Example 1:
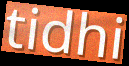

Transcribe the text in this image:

tidhi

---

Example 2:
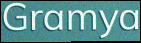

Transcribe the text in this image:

Gramya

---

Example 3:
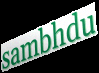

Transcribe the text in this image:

sambhdu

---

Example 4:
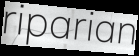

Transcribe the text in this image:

riparian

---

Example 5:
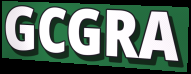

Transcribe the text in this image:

GCGRA